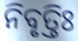
ନିବୃତ୍ତିଃ